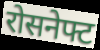
रोसनेफ्ट